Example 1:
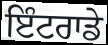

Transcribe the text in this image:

ਇੰਟਰਾਡੇ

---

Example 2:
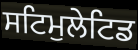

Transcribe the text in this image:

ਸਟਿਮੁਲੇਟਿਡ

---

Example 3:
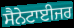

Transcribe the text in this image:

ਸੈਨੇਟਾਈਜਰ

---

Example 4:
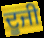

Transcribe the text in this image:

ਦੂਜੀ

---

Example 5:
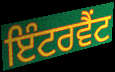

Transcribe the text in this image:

ਇੰਟਰਵੈਂਟ